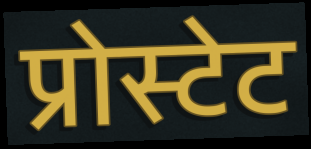
प्रोस्टेट